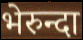
भेरुन्दा